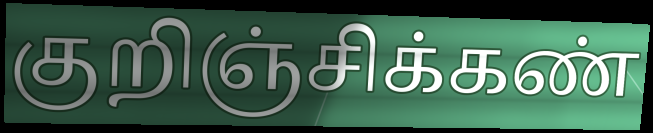
குறிஞ்சிக்கண்